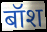
बॉश